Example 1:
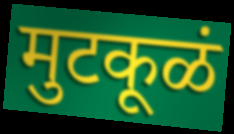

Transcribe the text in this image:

मुटकूळं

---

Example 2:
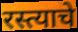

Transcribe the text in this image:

रस्त्याचे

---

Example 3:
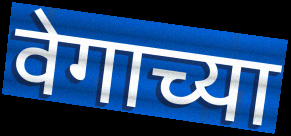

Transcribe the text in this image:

वेगाच्या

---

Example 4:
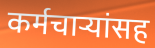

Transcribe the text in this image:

कर्मचाऱ्यांसह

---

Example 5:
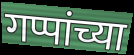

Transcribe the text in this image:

गप्पांच्या